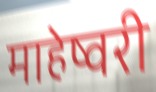
माहेष्वरी